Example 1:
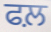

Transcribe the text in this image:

ਫਲ਼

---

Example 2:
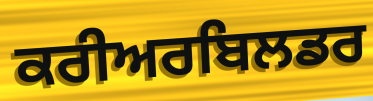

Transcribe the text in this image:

ਕਰੀਅਰਬਿਲਡਰ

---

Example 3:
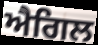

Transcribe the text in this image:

ਐਗਿਲ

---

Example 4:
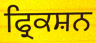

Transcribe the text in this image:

ਫ੍ਰਿਕਸ਼ਨ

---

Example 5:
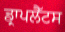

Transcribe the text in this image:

ਡ੍ਰਾਪਲੈੱਟਸ